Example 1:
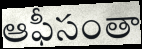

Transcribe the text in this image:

ఆఫీసంతా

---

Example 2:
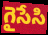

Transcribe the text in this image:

గైసేసి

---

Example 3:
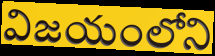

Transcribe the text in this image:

విజయంలోని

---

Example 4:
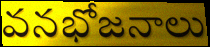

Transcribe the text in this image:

వనభోజనాలు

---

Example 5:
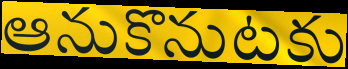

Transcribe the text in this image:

ఆనుకొనుటకు